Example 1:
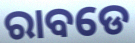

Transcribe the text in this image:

ରାବଡେ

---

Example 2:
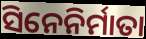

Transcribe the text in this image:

ସିନେନିର୍ମାତା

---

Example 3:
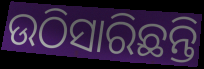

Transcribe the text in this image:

ଉଠିସାରିଛନ୍ତି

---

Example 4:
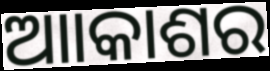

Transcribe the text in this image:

ଆାକାଶର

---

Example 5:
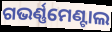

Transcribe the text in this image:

ଗଭର୍ଣ୍ଣମେଣ୍ଟାଲ